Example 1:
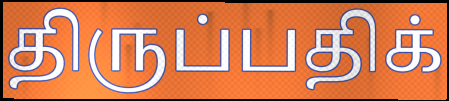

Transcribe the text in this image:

திருப்பதிக்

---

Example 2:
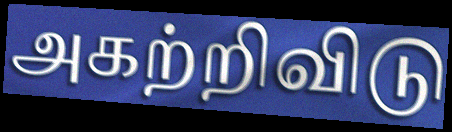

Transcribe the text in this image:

அகற்றிவிடு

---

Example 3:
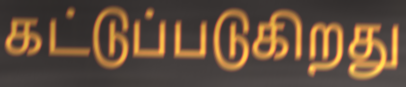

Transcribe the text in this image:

கட்டுப்படுகிறது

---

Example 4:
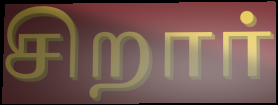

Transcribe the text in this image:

சிறார்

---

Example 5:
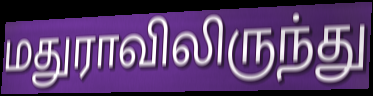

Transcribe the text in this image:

மதுராவிலிருந்து